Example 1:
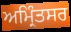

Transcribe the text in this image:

ਅਮ੍ਰਿੰਤਸਰ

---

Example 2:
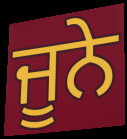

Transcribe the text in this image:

ਜੂਨੇ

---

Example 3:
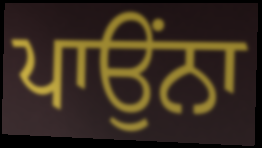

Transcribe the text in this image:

ਪਾਉਂਨਾ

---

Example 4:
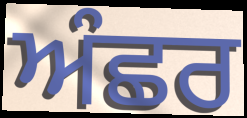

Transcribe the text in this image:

ਅੰਛਰ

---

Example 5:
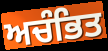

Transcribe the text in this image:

ਅਚੰਭਿਤ